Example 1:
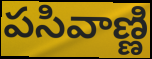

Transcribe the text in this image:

పసివాణ్ణి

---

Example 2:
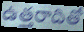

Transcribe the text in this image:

ఉత్తరాదితో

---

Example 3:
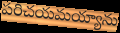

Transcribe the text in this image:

పరిచయమయ్యాను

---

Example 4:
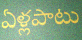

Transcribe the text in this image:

ఏళ్లపాటు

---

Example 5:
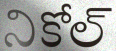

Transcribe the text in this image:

నికోల్